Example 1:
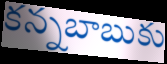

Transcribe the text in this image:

కన్నబాబుకు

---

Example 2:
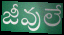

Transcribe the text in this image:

జీవులే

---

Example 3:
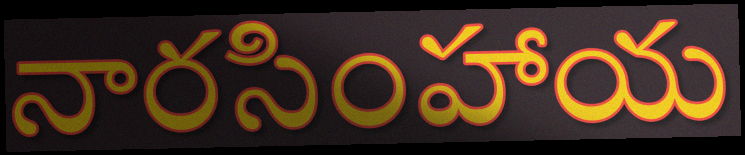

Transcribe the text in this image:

నారసింహాయ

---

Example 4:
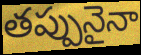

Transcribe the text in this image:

తప్పునైనా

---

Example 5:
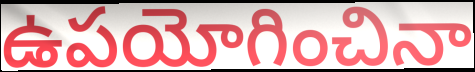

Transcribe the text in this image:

ఉపయోగించినా